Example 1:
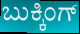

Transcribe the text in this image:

ಬುಕ್ಕಿಂಗ್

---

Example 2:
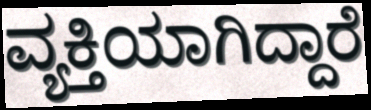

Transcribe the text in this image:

ವ್ಯಕ್ತಿಯಾಗಿದ್ದಾರೆ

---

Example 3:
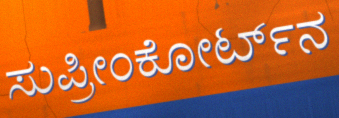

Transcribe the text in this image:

ಸುಪ್ರೀಂಕೋರ್ಟ್‌ನ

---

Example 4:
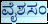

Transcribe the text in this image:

ವೈಶಸಂ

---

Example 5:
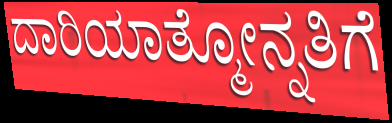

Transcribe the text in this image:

ದಾರಿಯಾತ್ಮೋನ್ನತಿಗೆ